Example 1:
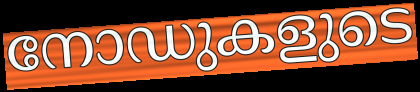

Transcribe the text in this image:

നോഡുകളുടെ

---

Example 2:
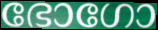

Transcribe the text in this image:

ഭോഗോ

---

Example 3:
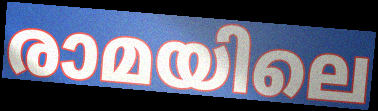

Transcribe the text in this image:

രാമയിലെ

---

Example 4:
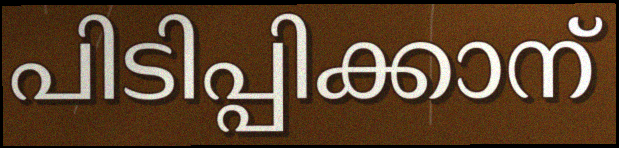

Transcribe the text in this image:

പിടിപ്പിക്കാന്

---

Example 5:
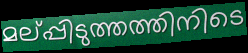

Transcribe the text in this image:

മല്പ്പിടുത്തത്തിനിടെ